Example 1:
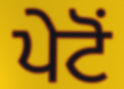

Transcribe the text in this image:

ਪੇਟੋਂ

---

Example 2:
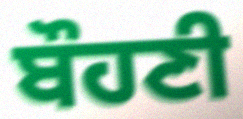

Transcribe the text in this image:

ਬੌਹਣੀ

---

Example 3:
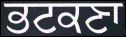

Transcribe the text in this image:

ਭਟਕਣਾ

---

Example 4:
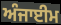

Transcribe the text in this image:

ਅੰਜਾਈਮ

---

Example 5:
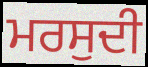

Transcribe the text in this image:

ਮਰਸੁਦੀ